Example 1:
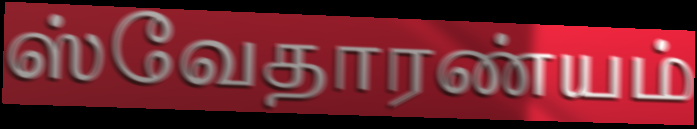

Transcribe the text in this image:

ஸ்வேதாரண்யம்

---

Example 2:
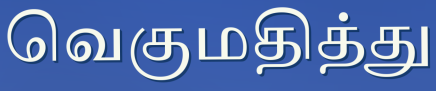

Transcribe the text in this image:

வெகுமதித்து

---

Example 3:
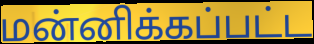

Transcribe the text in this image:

மன்னிக்கப்பட்ட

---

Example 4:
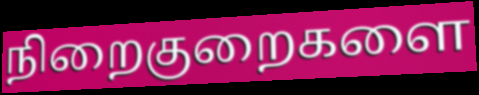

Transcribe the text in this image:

நிறைகுறைகளை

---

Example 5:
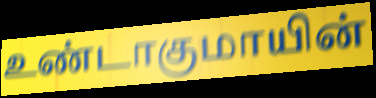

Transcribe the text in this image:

உண்டாகுமாயின்